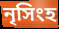
নৃসিংহ